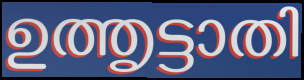
ഉത്തൃട്ടാതി